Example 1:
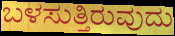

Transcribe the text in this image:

ಬಳಸುತ್ತಿರುವುದು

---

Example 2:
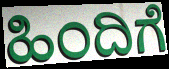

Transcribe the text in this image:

ಹಿಂದಿಗೆ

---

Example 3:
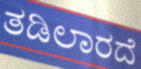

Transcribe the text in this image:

ತಡಿಲಾರದೆ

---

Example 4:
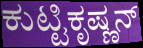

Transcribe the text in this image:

ಕುಟ್ಟಿಕೃಷ್ಣನ್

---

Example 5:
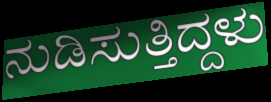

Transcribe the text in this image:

ನುಡಿಸುತ್ತಿದ್ದಳು